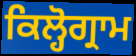
ਕਿਲ੍ਹੋਗ੍ਰਾਮ